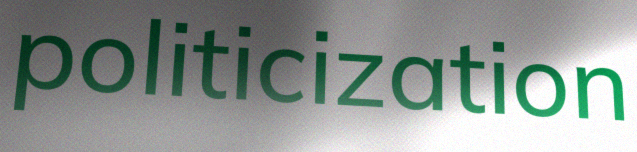
politicization